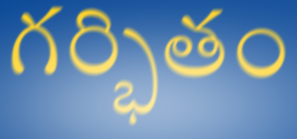
గర్భితం